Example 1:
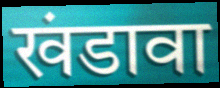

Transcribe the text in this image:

खंडावा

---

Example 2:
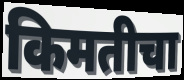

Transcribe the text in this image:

किमतीचा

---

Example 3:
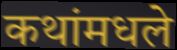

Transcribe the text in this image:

कथांमधले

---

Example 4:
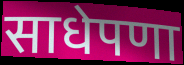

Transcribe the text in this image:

साधेपणा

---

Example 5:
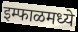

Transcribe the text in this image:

इम्फाळमध्ये